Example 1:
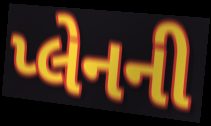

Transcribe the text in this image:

પ્લેનની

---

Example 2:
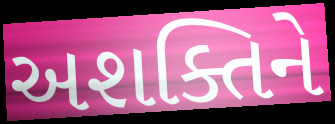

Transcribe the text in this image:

અશક્તિને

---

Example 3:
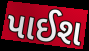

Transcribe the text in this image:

પાઈશ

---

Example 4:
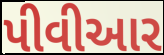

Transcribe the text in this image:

પીવીઆર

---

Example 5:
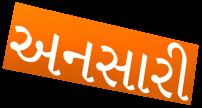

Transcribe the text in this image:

અનસારી